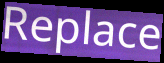
Replace